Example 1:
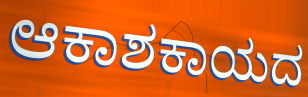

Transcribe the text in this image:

ಆಕಾಶಕಾಯದ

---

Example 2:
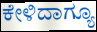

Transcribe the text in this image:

ಕೇಳಿದಾಗ್ಯೂ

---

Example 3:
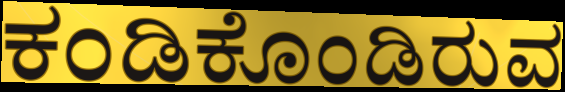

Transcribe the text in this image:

ಕಂಡಿಕೊಂಡಿರುವ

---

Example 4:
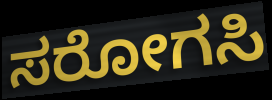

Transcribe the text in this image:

ಸರೋಗಸಿ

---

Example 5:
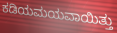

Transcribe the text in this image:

ಕಡಿಯಮಯವಾಯಿತ್ತು